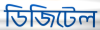
ডিজিটেল